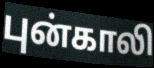
புன்காலி